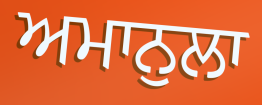
ਅਮਾਨੁਲਾ